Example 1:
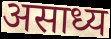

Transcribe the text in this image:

असाध्य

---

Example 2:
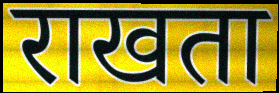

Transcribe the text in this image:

राखता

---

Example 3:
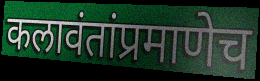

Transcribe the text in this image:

कलावंतांप्रमाणेच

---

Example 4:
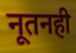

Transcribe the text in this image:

नूतनही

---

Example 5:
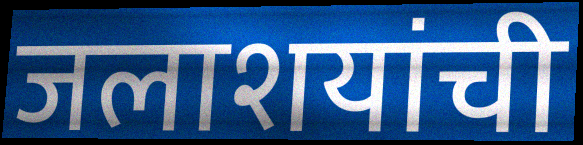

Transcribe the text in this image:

जलाशयांची